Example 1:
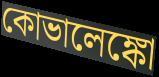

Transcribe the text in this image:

কোভালেঙ্কো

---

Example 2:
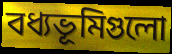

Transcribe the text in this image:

বধ্যভূমিগুলো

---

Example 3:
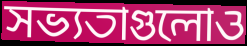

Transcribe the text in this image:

সভ্যতাগুলোও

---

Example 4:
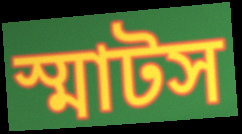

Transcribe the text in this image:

স্মাটস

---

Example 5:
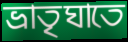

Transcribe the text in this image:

ভ্রাতৃঘাতে